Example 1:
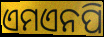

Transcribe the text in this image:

ଏମଏନପି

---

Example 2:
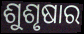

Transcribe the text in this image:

ଶୁଶୃଷାର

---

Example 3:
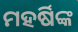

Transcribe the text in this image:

ମହର୍ଷିଙ୍କ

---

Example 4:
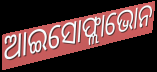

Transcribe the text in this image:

ଆଇସୋଫ୍ଲାଭୋନ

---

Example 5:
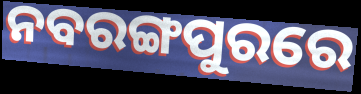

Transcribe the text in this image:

ନବରଙ୍ଗପୁରରେ